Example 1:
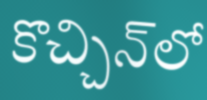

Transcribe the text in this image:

కొచ్చిన్‌లో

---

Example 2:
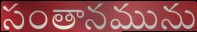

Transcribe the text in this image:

సంతానమును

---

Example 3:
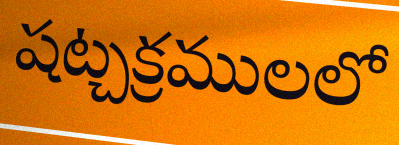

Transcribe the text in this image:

షట్చక్రములలో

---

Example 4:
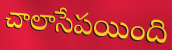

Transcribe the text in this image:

చాలాసేపయింది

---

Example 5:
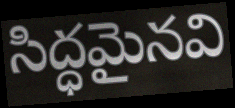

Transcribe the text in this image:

సిద్ధమైనవి